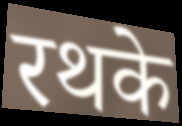
रथके